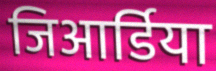
जिआर्डिया